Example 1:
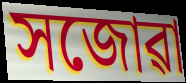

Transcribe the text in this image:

সজোৱা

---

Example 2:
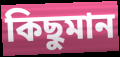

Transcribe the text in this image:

কিছুমান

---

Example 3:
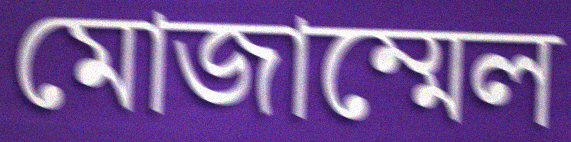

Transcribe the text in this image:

মোজাম্মেল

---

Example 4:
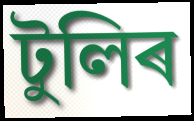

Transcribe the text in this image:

টুলিৰ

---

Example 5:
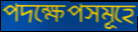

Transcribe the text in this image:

পদক্ষেপসমূহে